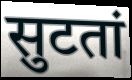
सुटतां